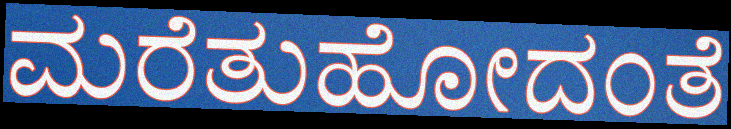
ಮರೆತುಹೋದಂತೆ